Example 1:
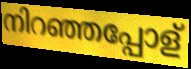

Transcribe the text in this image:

നിറഞ്ഞപ്പോള്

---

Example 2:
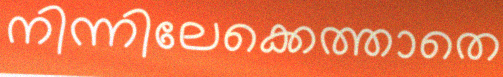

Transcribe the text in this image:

നിന്നിലേക്കെത്താതെ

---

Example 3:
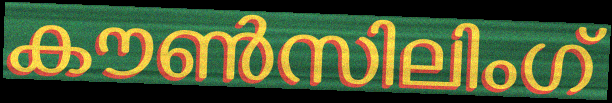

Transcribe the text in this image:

കൗൺസിലിംഗ്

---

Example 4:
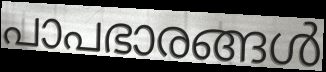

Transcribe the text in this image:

പാപഭാരങ്ങൾ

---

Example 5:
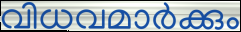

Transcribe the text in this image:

വിധവമാർക്കും